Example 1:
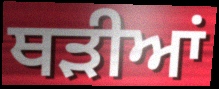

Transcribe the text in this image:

ਥੜੀਆਂ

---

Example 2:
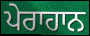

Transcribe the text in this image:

ਪੇਰਾਹਾਨ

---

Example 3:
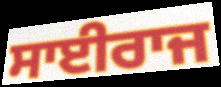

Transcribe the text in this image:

ਸਾਈਰਾਜ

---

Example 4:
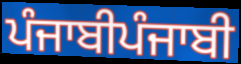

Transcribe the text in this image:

ਪੰਜਾਬੀਪੰਜਾਬੀ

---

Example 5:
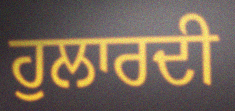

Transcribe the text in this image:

ਹੁਲਾਰਦੀ